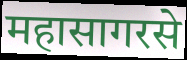
महासागरसे